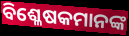
ବିଶ୍ଳେଷକମାନଙ୍କ